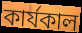
কাৰ্যকাল